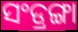
ସଂଡ୍ରଙ୍ଗା